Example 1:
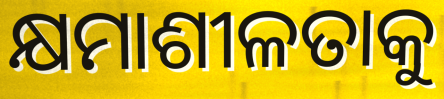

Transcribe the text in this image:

କ୍ଷମାଶୀଳତାକୁ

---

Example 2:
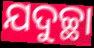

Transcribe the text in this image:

ଯଦୁଚ୍ଛା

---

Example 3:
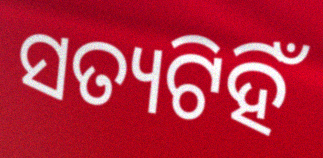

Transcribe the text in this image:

ସତ୍ୟଟିହିଁ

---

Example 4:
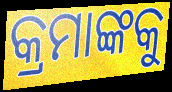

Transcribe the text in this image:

କ୍ରମାଙ୍କକୁ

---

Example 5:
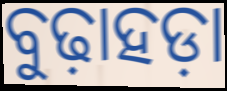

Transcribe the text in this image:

ବୁଢ଼ାହଡ଼ା